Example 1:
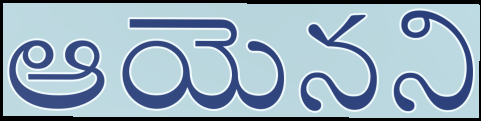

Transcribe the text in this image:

ఆయెనని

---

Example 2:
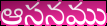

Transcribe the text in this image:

ఆసనము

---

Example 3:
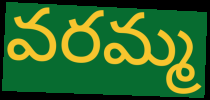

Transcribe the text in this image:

వరమ్మ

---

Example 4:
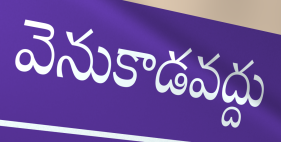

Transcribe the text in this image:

వెనుకాడవద్దు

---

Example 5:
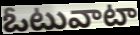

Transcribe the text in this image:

ఓటువాటా